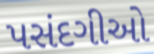
પસંદગીઓ